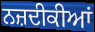
ਨਜ਼ਦੀਕੀਆਂ